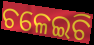
ଚଳେଇଚି